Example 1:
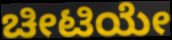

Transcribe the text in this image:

ಚೀಟಿಯೇ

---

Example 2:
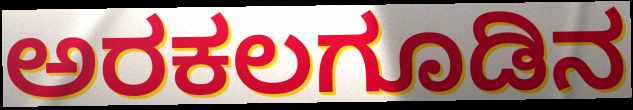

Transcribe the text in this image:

ಅರಕಲಗೂಡಿನ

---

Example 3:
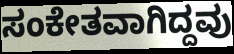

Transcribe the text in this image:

ಸಂಕೇತವಾಗಿದ್ದವು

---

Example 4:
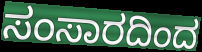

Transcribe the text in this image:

ಸಂಸಾರದಿಂದ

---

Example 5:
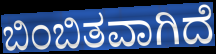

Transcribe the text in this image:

ಬಿಂಬಿತವಾಗಿದೆ